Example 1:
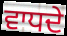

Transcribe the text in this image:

ਵਾਧਦੇ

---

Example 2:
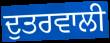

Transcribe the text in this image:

ਦੁਤਰਵਾਲੀ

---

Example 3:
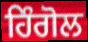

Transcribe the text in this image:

ਹਿੰਗੋਲ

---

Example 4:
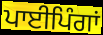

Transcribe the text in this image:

ਪਾਈਪਿੰਗਾਂ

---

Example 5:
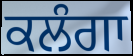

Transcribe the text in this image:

ਕਲੰਗਾ